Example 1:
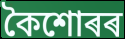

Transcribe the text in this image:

কৈশোৰৰ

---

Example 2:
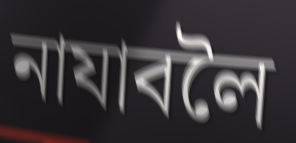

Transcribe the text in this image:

নাযাবলৈ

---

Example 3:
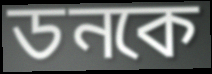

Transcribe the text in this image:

ডনকে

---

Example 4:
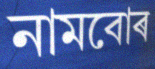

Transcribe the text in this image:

নামবোৰ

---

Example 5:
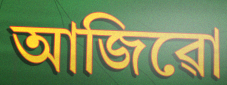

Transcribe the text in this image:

আজিৱো